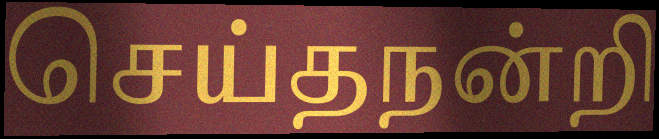
செய்தநன்றி